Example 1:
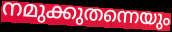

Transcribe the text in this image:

നമുക്കുതന്നെയും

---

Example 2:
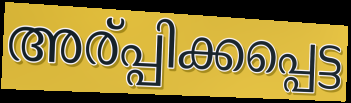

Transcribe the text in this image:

അര്പ്പിക്കപ്പെട്ട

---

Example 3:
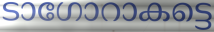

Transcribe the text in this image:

ടാഗോറാകട്ടെ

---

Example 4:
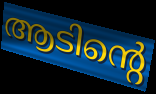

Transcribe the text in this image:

ആടിന്റെ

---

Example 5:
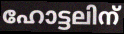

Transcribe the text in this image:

ഹോട്ടലിന്